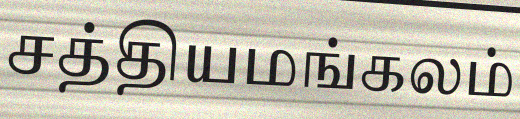
சத்தியமங்கலம்